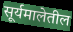
सूर्यमालेतील